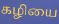
கழியை